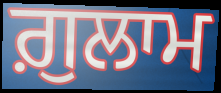
ਗ਼ੁਲਾਮ